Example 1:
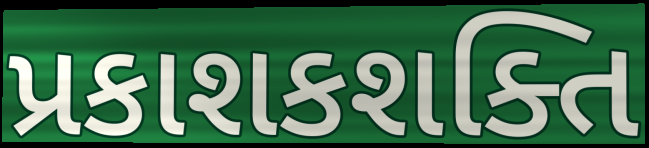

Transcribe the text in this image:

પ્રકાશકશક્તિ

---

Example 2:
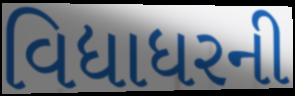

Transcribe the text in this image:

વિદ્યાધરની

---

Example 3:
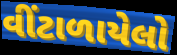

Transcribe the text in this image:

વીંટાળાયેલો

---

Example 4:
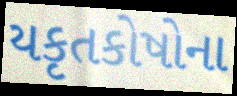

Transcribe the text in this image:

યકૃતકોષોના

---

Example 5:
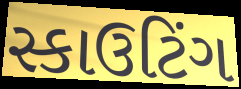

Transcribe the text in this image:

સ્કાઉટિંગ